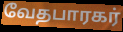
வேதபாரகர்